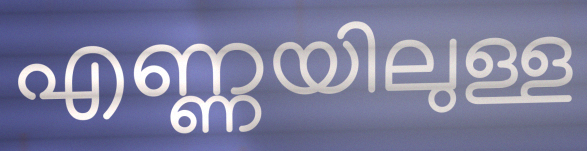
എണ്ണയിലുള്ള